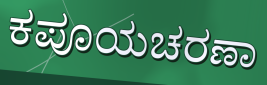
ಕಪೂಯಚರಣಾ